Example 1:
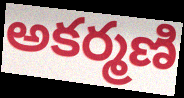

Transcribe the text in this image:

అకర్మణి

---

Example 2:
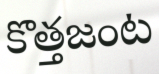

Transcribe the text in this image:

కొత్తజంట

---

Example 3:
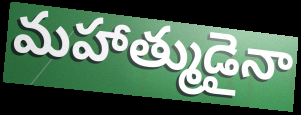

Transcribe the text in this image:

మహాత్ముడైనా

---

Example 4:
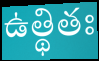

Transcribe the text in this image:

ఉత్థితః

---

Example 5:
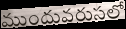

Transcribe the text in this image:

ముందువరుసలో